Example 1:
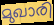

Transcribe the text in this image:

മുഖാരി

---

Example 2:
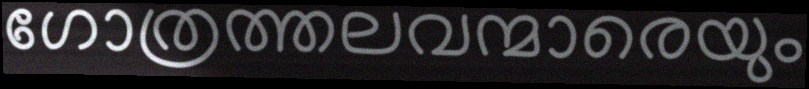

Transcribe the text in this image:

ഗോത്രത്തലവന്മാരെയും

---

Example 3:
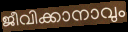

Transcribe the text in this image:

ജീവിക്കാനാവും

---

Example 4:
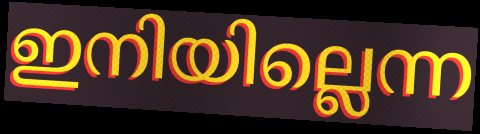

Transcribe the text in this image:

ഇനിയില്ലെന്ന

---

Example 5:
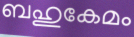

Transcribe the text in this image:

ബഹുകേമം